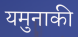
यमुनाकी